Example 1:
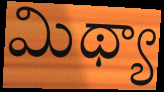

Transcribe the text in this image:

మిథ్యా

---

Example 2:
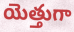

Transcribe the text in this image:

యెత్తుగా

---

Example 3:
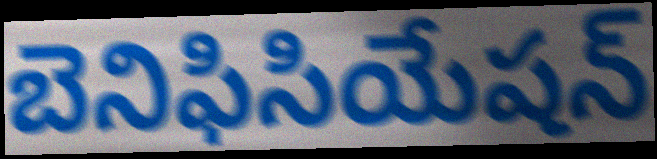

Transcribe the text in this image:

బెనిఫిసియేషన్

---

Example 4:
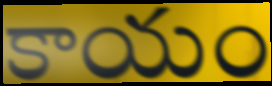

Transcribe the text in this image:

కాయం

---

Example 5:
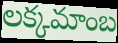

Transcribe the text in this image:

లక్కమాంబ